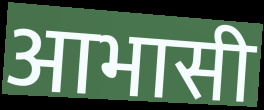
आभासी